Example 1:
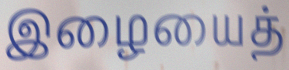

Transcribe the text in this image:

இழையைத்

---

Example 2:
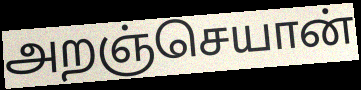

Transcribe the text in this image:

அறஞ்செயான்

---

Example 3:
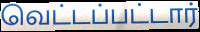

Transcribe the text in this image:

வெட்டப்பட்டார்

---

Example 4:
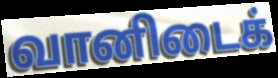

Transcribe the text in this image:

வானிடைக்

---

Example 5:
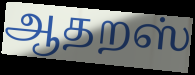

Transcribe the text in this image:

ஆதறஸ்